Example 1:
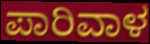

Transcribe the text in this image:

ಪಾರಿವಾಳ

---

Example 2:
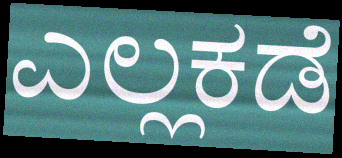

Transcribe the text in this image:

ಎಲ್ಲಕಡೆ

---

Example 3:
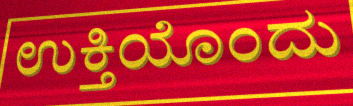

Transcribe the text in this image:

ಉಕ್ತಿಯೊಂದು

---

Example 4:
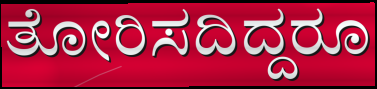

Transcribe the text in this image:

ತೋರಿಸದಿದ್ದರೂ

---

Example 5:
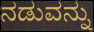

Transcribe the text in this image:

ನಡುವನ್ನು